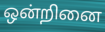
ஒன்றினை